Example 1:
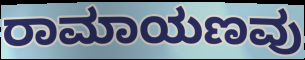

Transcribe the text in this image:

ರಾಮಾಯಣವು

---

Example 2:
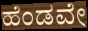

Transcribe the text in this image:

ಹೆಂಡವೇ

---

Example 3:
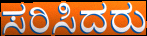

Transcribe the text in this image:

ಸರಿಸಿದರು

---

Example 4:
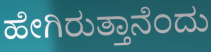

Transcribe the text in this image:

ಹೇಗಿರುತ್ತಾನೆಂದು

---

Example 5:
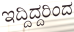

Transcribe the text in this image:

ಇದ್ದಿದ್ದರಿಂದ